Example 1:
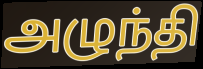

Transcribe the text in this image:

அழுந்தி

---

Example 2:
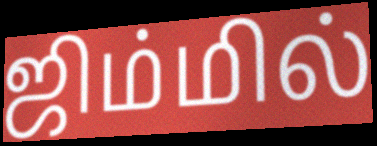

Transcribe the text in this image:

ஜிம்மில்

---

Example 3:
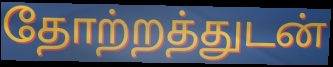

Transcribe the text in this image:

தோற்றத்துடன்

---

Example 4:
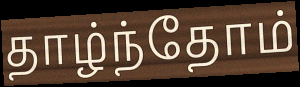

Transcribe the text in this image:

தாழ்ந்தோம்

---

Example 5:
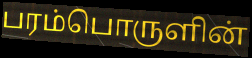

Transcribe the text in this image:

பரம்பொருளின்